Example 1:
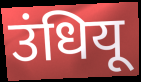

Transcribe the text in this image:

उंधियू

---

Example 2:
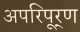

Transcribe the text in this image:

अपरिपूर्ण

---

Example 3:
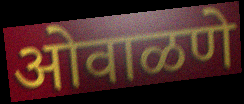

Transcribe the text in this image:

ओवाळणे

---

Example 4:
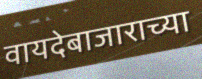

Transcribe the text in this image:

वायदेबाजाराच्या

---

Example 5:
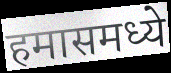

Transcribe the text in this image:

हमासमध्ये